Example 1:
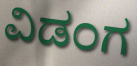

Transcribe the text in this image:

ವಿಡಂಗ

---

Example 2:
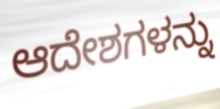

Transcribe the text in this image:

ಆದೇಶಗಳನ್ನು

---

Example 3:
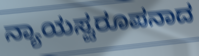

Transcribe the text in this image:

ನ್ಯಾಯಸ್ವರೂಪನಾದ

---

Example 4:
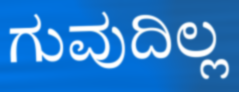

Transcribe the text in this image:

ಗುವುದಿಲ್ಲ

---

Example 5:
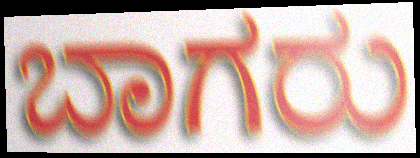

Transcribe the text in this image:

ಬಾಗರು